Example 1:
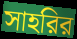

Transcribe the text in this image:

সাহরির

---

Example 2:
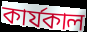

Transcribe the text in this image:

কার্যকাল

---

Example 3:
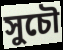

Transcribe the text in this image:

সুচৌ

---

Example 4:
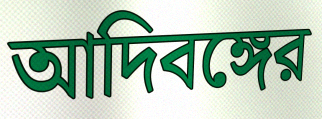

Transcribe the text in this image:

আদিবঙ্গের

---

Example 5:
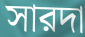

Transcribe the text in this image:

সারদা